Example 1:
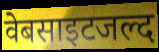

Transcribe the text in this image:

वेबसाइटजल्द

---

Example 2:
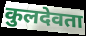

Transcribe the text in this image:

कुलदेवता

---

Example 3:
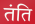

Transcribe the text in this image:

तंति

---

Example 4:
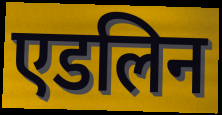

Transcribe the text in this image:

एडलिन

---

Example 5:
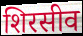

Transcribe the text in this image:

शिरसीव